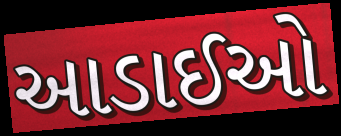
આડાઈઓ